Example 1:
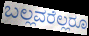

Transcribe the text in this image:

ಬಲ್ಲವರೆಲ್ಲರೂ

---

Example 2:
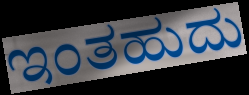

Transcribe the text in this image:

ಇಂತಹುದು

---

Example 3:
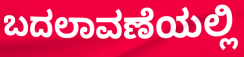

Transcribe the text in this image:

ಬದಲಾವಣೆಯಲ್ಲಿ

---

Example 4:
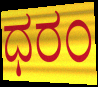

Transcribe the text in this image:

ಧರಂ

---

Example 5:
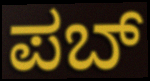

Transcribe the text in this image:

ಪಬ್